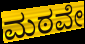
ಮಠವೇ